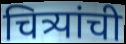
चित्र्यांची